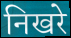
निखरे